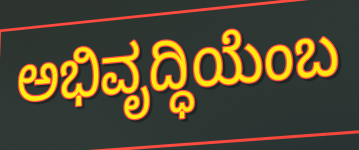
ಅಭಿವೃದ್ಧಿಯೆಂಬ